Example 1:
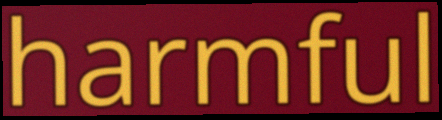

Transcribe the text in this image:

harmful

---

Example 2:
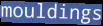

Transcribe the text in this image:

mouldings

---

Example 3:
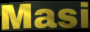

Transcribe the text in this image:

Masi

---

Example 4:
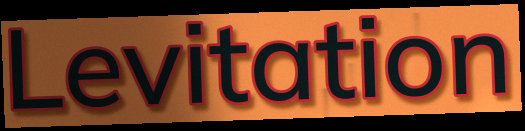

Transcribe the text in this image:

Levitation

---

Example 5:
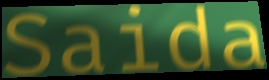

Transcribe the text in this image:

Saida